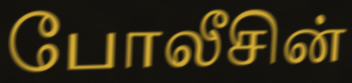
போலீசின்